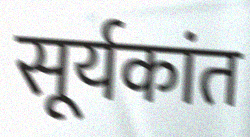
सूर्यकांत